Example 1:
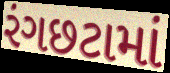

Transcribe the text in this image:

રંગછટામાં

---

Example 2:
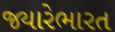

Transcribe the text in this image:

જ્યારેભારત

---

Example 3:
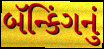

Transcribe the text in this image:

બૅન્કિંગનું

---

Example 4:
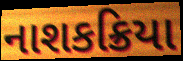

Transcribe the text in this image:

નાશકક્રિયા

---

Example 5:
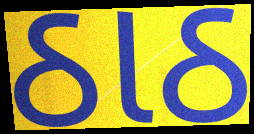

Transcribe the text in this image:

ઠાઠ